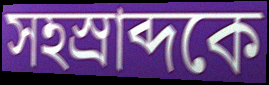
সহস্রাব্দকে